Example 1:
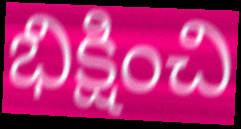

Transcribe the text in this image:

భిక్షించి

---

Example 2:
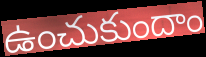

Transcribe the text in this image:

ఉంచుకుందాం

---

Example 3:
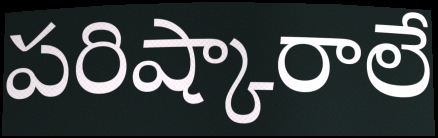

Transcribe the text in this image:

పరిష్కారాలే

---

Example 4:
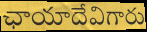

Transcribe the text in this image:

ఛాయాదేవిగారు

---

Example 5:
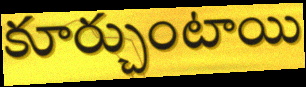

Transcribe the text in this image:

కూర్చుంటాయి